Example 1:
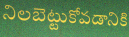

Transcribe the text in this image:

నిలబెట్టుకోవడానికి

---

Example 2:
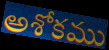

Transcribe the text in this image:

అశోకము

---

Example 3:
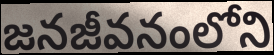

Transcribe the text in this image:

జనజీవనంలోని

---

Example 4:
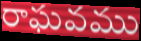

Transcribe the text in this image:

రాఘవము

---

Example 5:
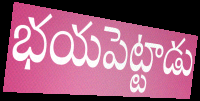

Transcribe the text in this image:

భయపెట్టాడు